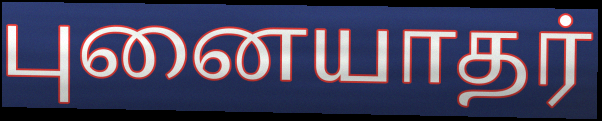
புனையாதர்